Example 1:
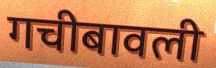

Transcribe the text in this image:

गचीबावली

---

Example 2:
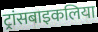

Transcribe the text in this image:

ट्रांसबाइकलिया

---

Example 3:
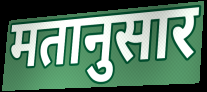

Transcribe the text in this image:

मतानुसार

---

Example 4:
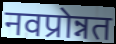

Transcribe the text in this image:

नवप्रोन्नत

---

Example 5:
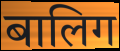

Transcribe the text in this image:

बालिग